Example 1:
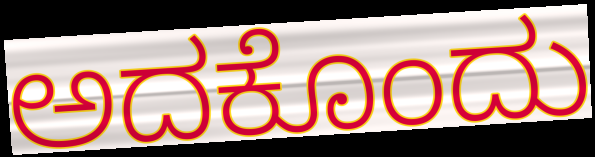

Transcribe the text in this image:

ಅದಕೊಂದು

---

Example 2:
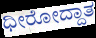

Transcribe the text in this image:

ಧೀರೋದ್ದಾತ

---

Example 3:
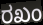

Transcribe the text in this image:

ರಖಂ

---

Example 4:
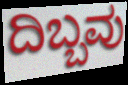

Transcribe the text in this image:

ದಿಬ್ಬವು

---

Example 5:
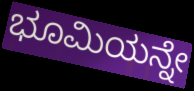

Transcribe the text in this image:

ಭೂಮಿಯನ್ನೇ